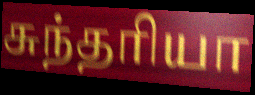
சுந்தரியா